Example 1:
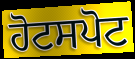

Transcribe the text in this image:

ਹੋਟਸਪੋਟ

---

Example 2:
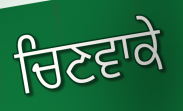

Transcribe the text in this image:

ਚਿਣਵਾਕੇ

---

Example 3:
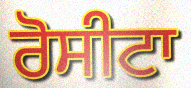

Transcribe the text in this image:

ਰੋਸੀਟਾ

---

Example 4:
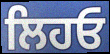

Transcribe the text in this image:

ਲਿਹਓ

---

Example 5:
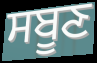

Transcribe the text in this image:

ਸਬੂਣ